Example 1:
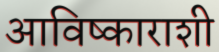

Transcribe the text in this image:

आविष्काराशी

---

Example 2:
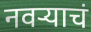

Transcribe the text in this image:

नवर्‍याचं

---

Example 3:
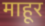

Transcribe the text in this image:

माहूर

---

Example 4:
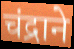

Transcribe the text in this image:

चंद्राने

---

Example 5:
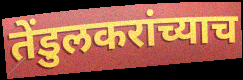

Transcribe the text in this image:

तेंडुलकरांच्याच